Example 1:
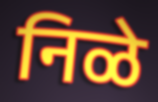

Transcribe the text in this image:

निळे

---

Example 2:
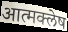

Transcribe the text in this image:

आत्मक्लेष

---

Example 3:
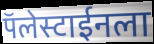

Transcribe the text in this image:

पॅलेस्टाईनला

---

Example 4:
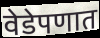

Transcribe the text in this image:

वेडेपणात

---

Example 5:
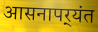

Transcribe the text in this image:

आसनापर्यंत